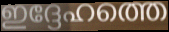
ഇദ്ദേഹത്തെ